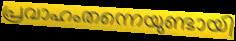
പ്രവാഹംതന്നെയുണ്ടായി